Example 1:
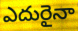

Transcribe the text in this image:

ఎదురైనా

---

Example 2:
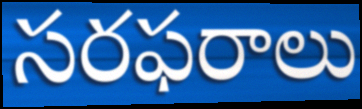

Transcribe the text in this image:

సరఫరాలు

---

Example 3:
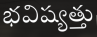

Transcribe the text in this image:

భవిష్యత్తు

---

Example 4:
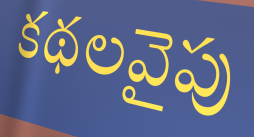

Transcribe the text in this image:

కథలవైపు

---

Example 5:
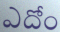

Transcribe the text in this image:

ఎదోం